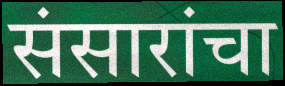
संसारांचा